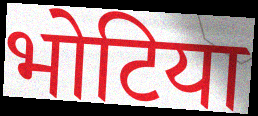
भोटिया